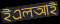
ইএলআই